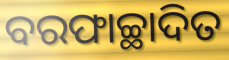
ବରଫାଚ୍ଛାଦିତ